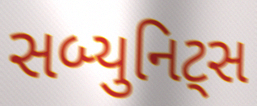
સબ્યુનિટ્સ